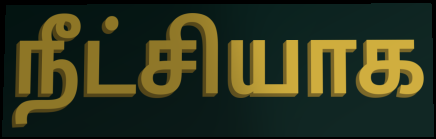
நீட்சியாக